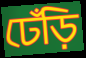
ঢেঁড়ি